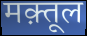
मक़्तूल